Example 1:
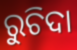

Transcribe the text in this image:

ରୁଚିଦା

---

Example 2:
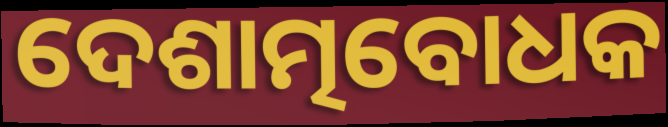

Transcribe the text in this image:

ଦେଶାତ୍ମବୋଧକ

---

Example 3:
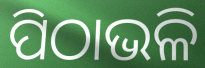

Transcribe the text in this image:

ପିଠାଭଳି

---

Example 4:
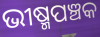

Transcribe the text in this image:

ଭୀଷ୍ମପଞ୍ଚକ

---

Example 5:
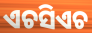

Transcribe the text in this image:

ଏଚସିଏଚ